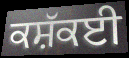
ਕਸ਼ੱਕਈ